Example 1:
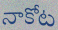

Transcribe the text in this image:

నాకోట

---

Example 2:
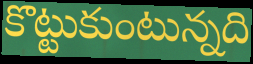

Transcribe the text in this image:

కొట్టుకుంటున్నది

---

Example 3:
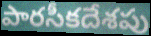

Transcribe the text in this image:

పారసీకదేశపు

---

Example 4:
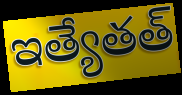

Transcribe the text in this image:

ఇత్యేతత్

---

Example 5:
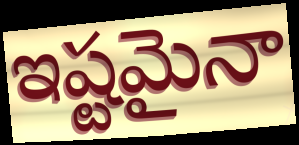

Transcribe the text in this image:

ఇష్టమైనా